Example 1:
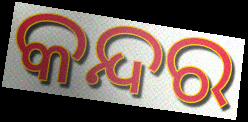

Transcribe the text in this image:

କନ୍ଦର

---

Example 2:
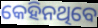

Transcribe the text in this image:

କେହିନଥିବେ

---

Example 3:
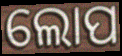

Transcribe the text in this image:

ଲୋପ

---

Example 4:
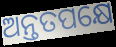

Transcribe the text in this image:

ଅନ୍ତତପକ୍ଷେ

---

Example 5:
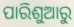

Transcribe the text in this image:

ପାରିଶୁଆରୁ